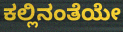
ಕಲ್ಲಿನಂತೆಯೇ